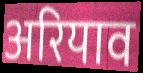
अरियाव